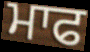
ਮਾਫ